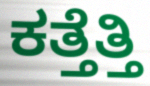
ಕತ್ತೆತ್ತಿ